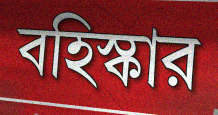
বহিস্কার